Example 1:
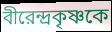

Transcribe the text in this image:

বীরেন্দ্রকৃষ্ণকে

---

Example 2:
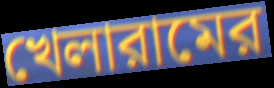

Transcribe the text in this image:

খেলারামের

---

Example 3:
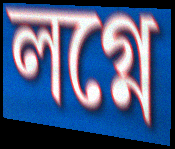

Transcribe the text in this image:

লগ্নে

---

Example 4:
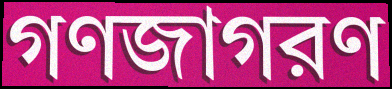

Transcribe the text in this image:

গণজাগরণ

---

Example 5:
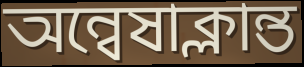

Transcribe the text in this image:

অন্বেষাক্লান্ত